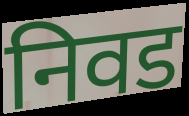
निवड